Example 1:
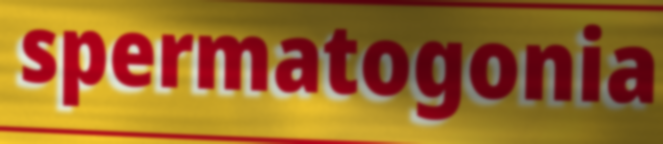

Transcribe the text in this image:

spermatogonia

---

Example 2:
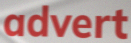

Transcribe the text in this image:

advert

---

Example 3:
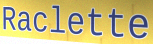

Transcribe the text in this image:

Raclette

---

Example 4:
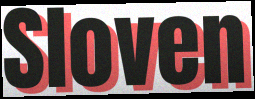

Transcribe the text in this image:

Sloven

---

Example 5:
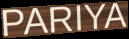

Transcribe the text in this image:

PARIYA